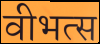
वीभत्स